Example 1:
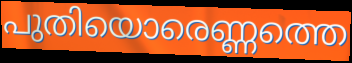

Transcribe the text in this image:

പുതിയൊരെണ്ണത്തെ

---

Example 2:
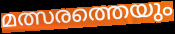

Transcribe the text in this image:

മത്സരത്തെയും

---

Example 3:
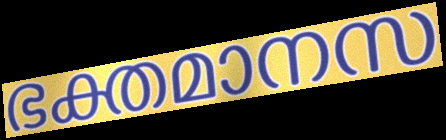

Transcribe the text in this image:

ഭക്തമാനസ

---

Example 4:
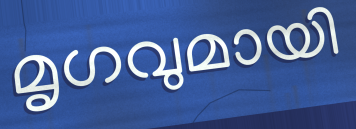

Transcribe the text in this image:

മൃഗവുമായി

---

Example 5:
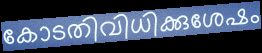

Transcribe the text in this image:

കോടതിവിധിക്കുശേഷം